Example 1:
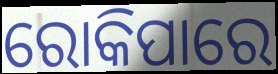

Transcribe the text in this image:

ରୋକିପାରେ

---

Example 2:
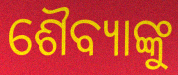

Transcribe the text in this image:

ଶୈବ୍ୟାଙ୍କୁ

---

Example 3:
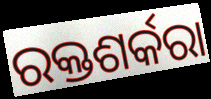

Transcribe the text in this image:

ରକ୍ତଶର୍କରା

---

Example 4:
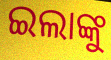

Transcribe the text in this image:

ଇଲାଙ୍କୁ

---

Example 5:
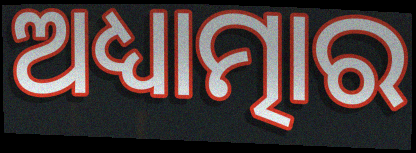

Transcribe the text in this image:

ଅଧ୍ୟାତ୍ମାର